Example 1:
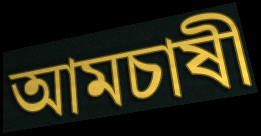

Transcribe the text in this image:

আমচাষী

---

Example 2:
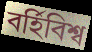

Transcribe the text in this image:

বর্হিবিশ্ব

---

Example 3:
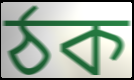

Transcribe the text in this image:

ঠক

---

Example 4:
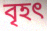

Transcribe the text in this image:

বৃহৎ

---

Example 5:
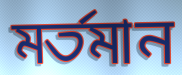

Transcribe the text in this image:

মর্তমান